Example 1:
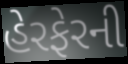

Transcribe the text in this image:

હેરફેરની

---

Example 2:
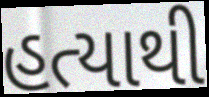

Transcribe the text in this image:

હત્યાથી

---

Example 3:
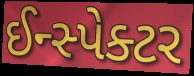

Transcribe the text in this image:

ઈન્સ્પેક્ટર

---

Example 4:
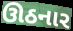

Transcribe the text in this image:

ઊઠનાર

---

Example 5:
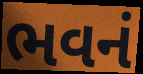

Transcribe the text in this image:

ભવનં